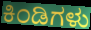
ಕಿಂಡಿಗಳು